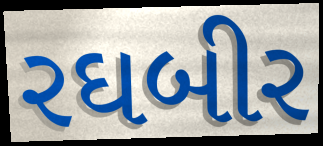
રઘબીર